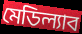
মেডিল্যাব